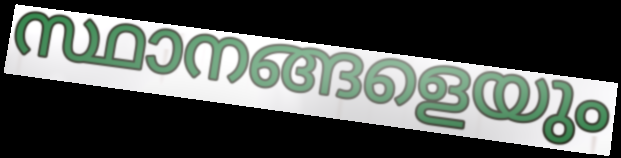
സ്ഥാനങ്ങളെയും